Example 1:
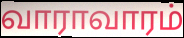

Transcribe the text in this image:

வாராவாரம்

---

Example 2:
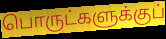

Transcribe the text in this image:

பொருட்களுக்குப்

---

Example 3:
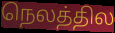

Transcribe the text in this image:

நெலத்தில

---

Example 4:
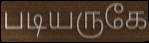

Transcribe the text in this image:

படியருகே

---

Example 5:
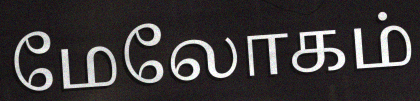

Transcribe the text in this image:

மேலோகம்